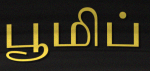
பூமிப்